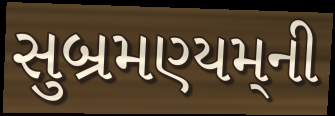
સુબ્રમણ્યમ્‌ની